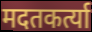
मदतकर्त्या